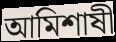
আমিশাষী